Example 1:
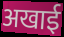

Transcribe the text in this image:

अखाई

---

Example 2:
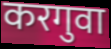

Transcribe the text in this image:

करगुवा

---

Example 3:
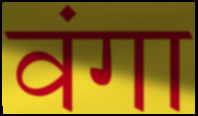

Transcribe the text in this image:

वंगा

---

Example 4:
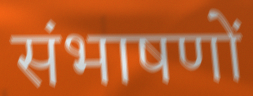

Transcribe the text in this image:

संभाषणों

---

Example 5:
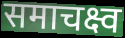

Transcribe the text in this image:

समाचक्ष्व